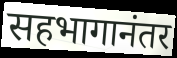
सहभागानंतर